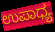
ಉಪಾಧ್ಯ